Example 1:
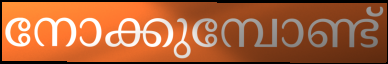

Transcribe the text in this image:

നോക്കുമ്പോണ്ട്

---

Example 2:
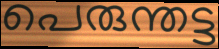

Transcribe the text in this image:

പെരുന്തട്ട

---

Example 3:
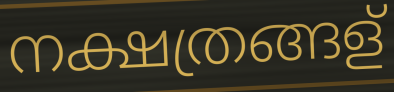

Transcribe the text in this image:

നക്ഷത്രങ്ങള്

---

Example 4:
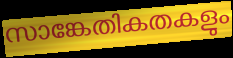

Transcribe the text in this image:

സാങ്കേതികതകളും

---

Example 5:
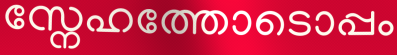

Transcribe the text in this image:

സ്നേഹത്തോടൊപ്പം